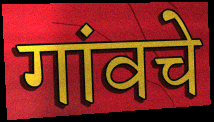
गांवचे